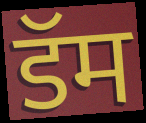
डॅम